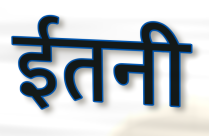
ईतनी